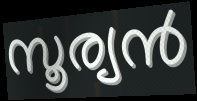
സൂര്യൻ